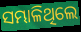
ସମ୍ଭାଳିଥିଲେ